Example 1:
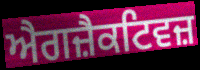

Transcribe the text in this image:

ਐਗਜ਼ੈਕਟਿਵਜ਼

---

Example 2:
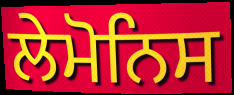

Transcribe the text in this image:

ਲੇਮੋਨਿਸ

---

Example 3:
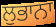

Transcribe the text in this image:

ਲੁਭਾਨਾ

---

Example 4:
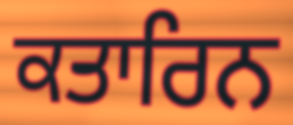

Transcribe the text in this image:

ਕਤਾਰਿਨ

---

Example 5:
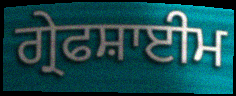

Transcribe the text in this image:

ਗ੍ਰੇਫਸ਼ਾਈਮ